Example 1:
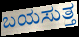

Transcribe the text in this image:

ಬಯಸುತ್ತ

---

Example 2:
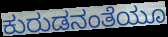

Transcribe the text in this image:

ಕುರುಡನಂತೆಯೂ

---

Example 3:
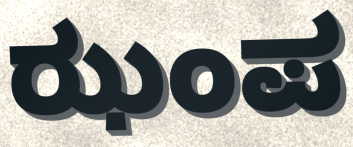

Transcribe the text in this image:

ಝಂಪ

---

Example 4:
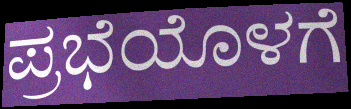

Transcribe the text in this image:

ಪ್ರಭೆಯೊಳಗೆ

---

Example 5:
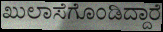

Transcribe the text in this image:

ಖುಲಾಸೆಗೊಂಡಿದ್ದಾರೆ